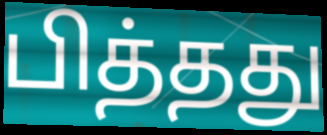
பித்தது